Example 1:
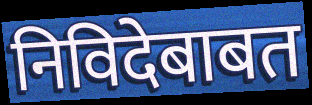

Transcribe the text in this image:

निविदेबाबत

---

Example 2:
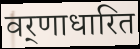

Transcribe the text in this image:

वर्णाधारित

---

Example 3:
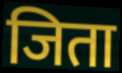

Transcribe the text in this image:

जिता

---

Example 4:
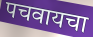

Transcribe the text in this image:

पचवायचा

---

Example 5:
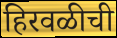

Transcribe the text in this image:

हिरवळीची